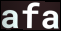
afa